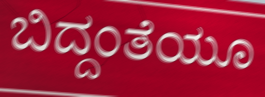
ಬಿದ್ದಂತೆಯೂ